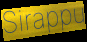
Sirappu